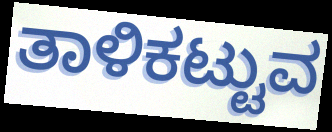
ತಾಳಿಕಟ್ಟುವ